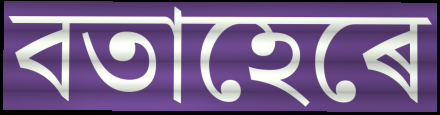
বতাহেৰে